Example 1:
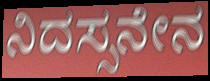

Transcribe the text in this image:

ನಿದಸ್ಸನೇನ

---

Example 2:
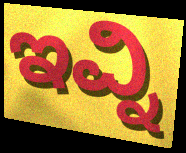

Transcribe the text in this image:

ಇವ್ನಿ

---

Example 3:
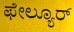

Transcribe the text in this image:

ಫೇಲ್ಯೂರ್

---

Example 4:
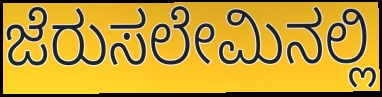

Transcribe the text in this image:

ಜೆರುಸಲೇಮಿನಲ್ಲಿ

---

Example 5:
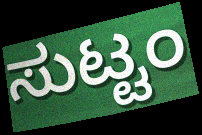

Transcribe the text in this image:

ಸುಟ್ಟಂ